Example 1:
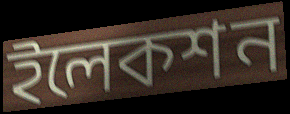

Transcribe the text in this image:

ইলেকশন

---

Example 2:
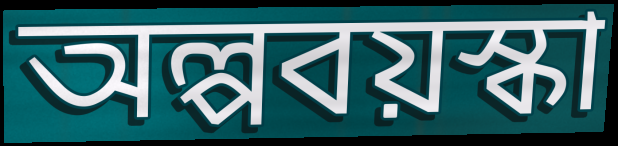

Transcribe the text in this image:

অল্পবয়স্কা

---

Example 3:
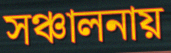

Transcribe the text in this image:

সঞ্চালনায়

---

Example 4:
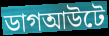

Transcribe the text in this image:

ডাগআউটে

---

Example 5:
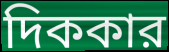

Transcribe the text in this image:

দিককার